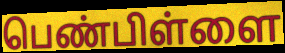
பெண்பிள்ளை